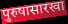
पुरुषासारखा